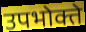
उपभोक्ते